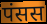
पंसस